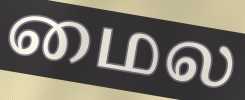
மைல